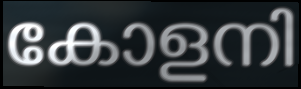
കോളനി